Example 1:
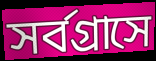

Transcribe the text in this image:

সর্বগ্রাসে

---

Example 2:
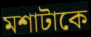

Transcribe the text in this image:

মশাটাকে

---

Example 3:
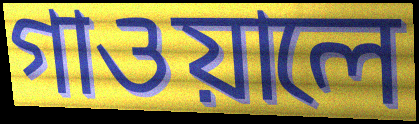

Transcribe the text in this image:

গাওয়ালে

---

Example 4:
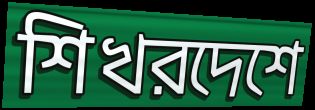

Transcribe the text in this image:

শিখরদেশে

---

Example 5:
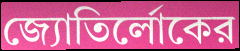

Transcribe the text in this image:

জ্যোতির্লোকের